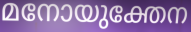
മനോയുക്തേന